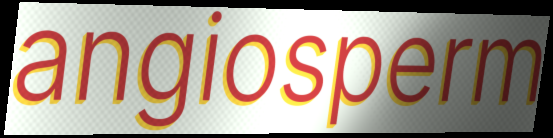
angiosperm